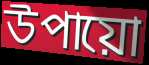
উপায়ো